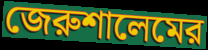
জেরুশালেমের